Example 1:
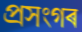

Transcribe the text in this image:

প্ৰসংগৰ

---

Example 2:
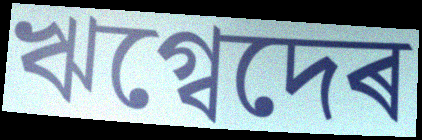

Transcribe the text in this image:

ঋগ্বেদেৰ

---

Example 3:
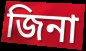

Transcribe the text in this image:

জিনা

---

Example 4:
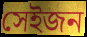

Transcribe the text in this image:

সেইজন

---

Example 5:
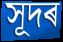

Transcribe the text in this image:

সূদৰ